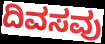
ದಿವಸವು